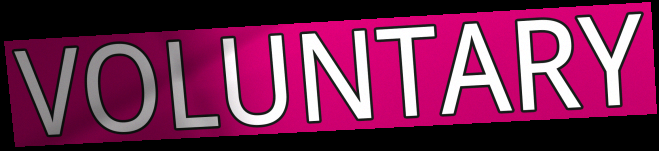
VOLUNTARY